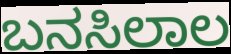
ಬನಸಿಲಾಲ